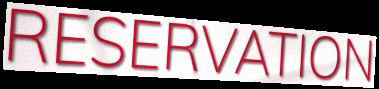
RESERVATION